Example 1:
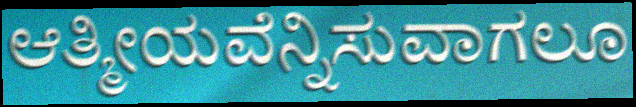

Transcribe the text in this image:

ಆತ್ಮೀಯವೆನ್ನಿಸುವಾಗಲೂ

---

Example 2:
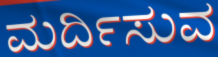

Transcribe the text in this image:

ಮರ್ದಿಸುವ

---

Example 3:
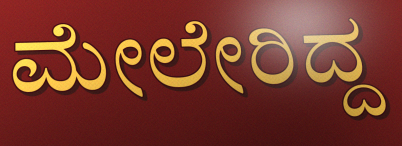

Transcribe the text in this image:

ಮೇಲೇರಿದ್ದ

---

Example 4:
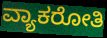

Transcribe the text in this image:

ವ್ಯಾಕರೋತಿ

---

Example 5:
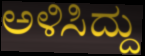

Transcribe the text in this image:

ಅಳಿಸಿದ್ದು